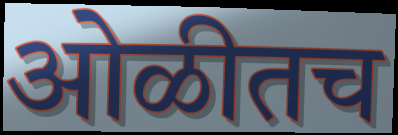
ओळीतच